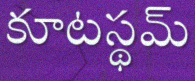
కూటస్థమ్